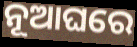
ନୂଆଘରେ